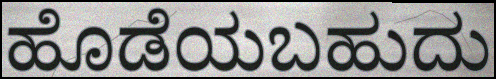
ಹೊಡೆಯಬಹುದು